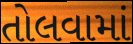
તોલવામાં